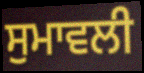
ਸੁਮਾਵਲੀ